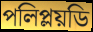
পলিপ্লয়ডি